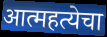
आत्महत्येचा